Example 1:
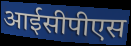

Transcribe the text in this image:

आईसीपीएस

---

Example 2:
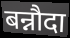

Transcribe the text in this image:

बन्नौदा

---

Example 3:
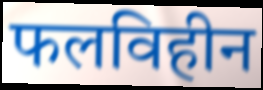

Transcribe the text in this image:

फलविहीन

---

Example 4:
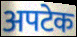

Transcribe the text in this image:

अपटेक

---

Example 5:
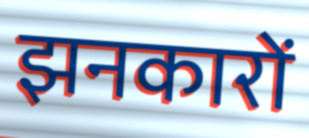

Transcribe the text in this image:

झनकारों